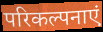
परिकल्पनाएं